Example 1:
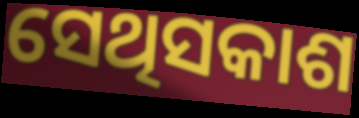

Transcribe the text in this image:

ସେଥିସକାଶ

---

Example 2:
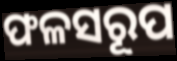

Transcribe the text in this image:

ଫଳସରୂପ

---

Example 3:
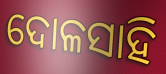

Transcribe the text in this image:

ଦୋଳସାହି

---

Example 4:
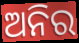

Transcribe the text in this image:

ଅନିର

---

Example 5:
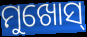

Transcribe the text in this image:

ମୁଖୋସ୍